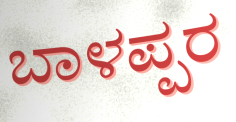
ಬಾಳಪ್ಪರ